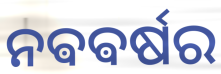
ନଵଵର୍ଷର